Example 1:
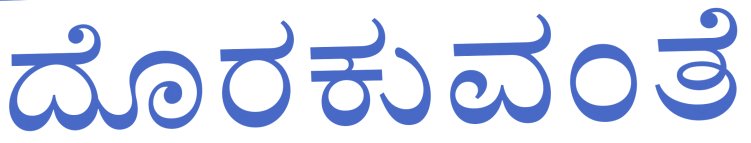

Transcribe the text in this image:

ದೊರಕುವಂತೆ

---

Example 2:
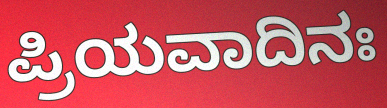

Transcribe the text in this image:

ಪ್ರಿಯವಾದಿನಃ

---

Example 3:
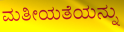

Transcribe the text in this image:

ಮತೀಯತೆಯನ್ನು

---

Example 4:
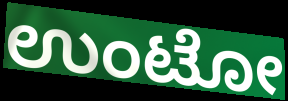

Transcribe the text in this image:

ಉಂಟೋ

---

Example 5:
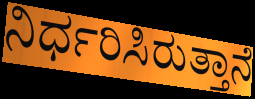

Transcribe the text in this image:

ನಿರ್ಧರಿಸಿರುತ್ತಾನೆ